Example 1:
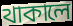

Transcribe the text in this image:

থাকালে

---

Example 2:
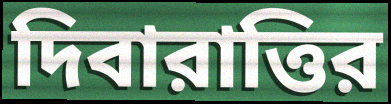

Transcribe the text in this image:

দিবারাত্তির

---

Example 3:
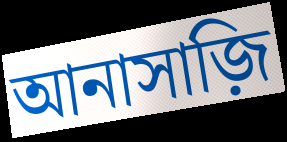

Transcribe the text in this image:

আনাসাজ়ি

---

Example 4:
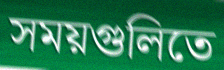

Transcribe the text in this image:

সময়গুলিতে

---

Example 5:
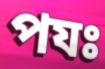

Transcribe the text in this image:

পযঃ